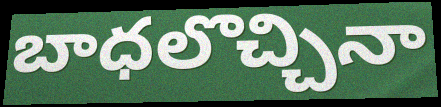
బాధలొచ్చినా